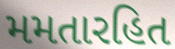
મમતારહિત